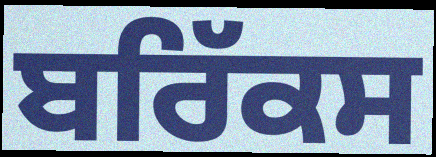
ਬਰਿੱਕਸ